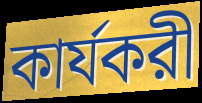
কার্যকরী